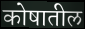
कोषातील